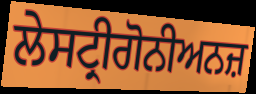
ਲੇਸਟ੍ਰੀਗੋਨੀਅਨਜ਼